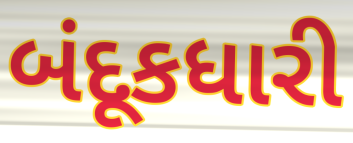
બંદૂકધારી